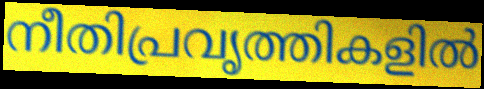
നീതിപ്രവൃത്തികളിൽ